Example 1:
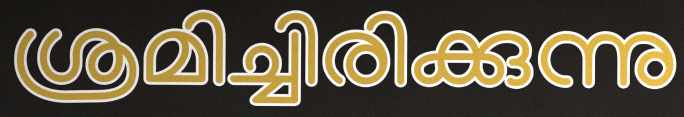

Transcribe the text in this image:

ശ്രമിച്ചിരിക്കുന്നു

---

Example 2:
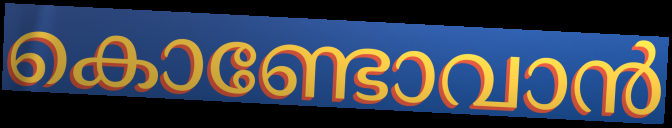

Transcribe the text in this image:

കൊണ്ടോവാൻ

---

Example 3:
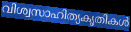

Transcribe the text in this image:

വിശ്വസാഹിത്യകൃതികൾ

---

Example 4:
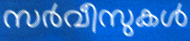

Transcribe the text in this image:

സർവീസുകൾ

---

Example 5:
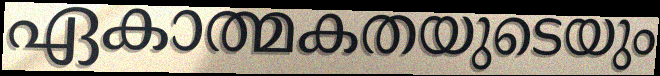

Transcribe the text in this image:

ഏകാത്മകതയുടെയും